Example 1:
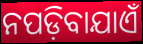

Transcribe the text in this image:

ନପଡ଼ିବାଯାଏଁ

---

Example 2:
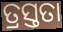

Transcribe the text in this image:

ତ୍ରସ୍ତତା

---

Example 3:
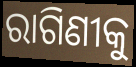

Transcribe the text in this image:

ରାଗିଣୀକୁ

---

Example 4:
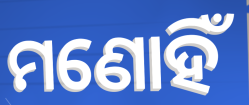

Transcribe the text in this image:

ମଣୋହିଁ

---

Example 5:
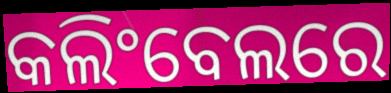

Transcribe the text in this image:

କଲିଂବେଲରେ